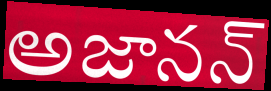
అజానన్